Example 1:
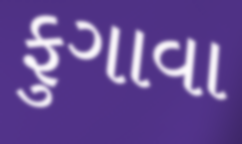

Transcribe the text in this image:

ફુગાવા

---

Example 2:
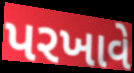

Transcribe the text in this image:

પરખાવે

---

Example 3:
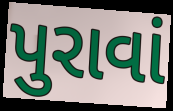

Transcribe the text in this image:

પુરાવાં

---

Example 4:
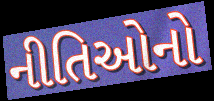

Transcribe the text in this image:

નીતિઓનો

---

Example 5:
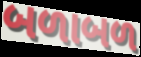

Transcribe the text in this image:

બળાબળ